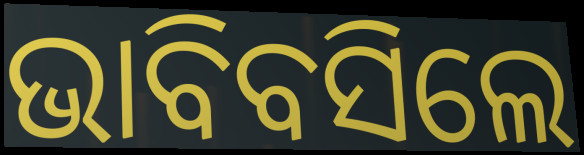
ଭାବିବସିଲେ